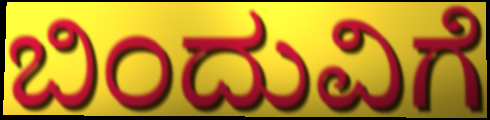
ಬಿಂದುವಿಗೆ